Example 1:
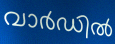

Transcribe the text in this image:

വാർഡിൽ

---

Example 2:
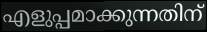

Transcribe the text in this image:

എളുപ്പമാക്കുന്നതിന്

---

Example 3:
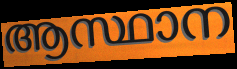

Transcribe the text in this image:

ആസ്ഥാന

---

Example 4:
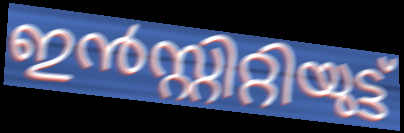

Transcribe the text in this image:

ഇൻസ്റ്റിറ്റിയുട്ട്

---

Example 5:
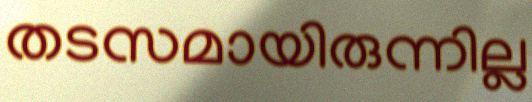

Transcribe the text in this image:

തടസമായിരുന്നില്ല